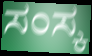
ಸಂಸ್ಕ